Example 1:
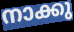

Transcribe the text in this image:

നാക്കു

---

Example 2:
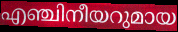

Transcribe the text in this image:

എഞ്ചിനീയറുമായ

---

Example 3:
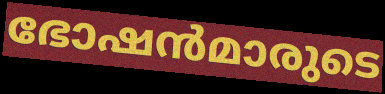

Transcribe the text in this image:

ഭോഷൻമാരുടെ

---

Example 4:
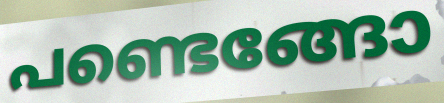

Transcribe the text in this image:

പണ്ടെങ്ങോ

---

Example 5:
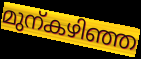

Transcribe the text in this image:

മുന്കഴിഞ്ഞ